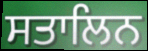
ਸਤਾਲਿਨ